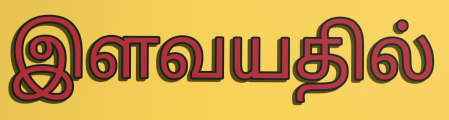
இளவயதில்